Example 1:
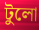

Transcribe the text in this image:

টুলো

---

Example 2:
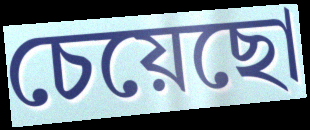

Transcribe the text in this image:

চেয়েছো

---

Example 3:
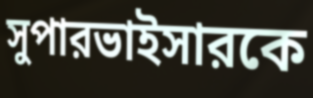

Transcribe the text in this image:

সুপারভাইসারকে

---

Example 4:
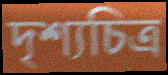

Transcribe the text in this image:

দৃশ্যচিত্র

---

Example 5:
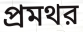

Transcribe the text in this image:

প্রমথর